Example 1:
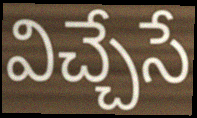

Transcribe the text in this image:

విచ్చేసే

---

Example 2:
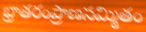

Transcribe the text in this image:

భ్రాతరంప్రాణసమ్మితం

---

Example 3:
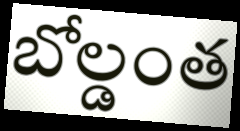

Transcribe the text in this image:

బోల్డంత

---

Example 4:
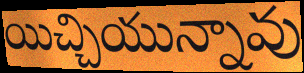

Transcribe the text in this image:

యిచ్చియున్నావు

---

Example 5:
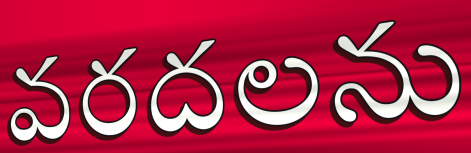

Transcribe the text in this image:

వరదలను